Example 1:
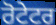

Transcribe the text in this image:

ਰੋਟੇਟਰ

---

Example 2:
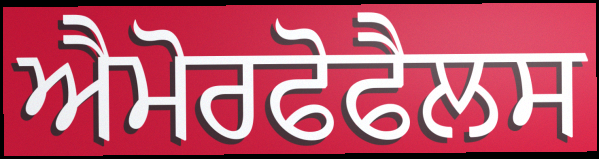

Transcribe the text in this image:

ਐਮੋਰਫੋਫੈਲਸ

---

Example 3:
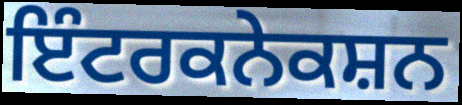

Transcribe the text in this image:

ਇੰਟਰਕਨੇਕਸ਼ਨ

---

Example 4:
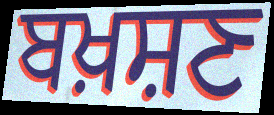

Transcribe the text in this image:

ਬਖ਼ਸ਼ਣ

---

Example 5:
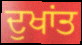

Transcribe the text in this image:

ਦੁਖਾਂਤ